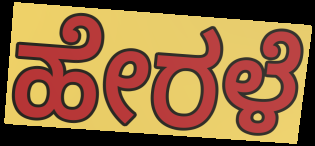
ಹೇರಳೆ